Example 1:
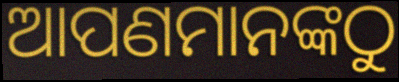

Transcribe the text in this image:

ଆପଣମାନଙ୍କଠୁ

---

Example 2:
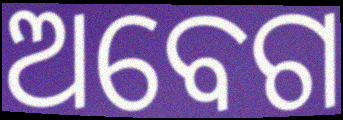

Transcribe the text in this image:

ଅବେଗ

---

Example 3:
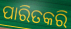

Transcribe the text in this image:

ପାରିତକରି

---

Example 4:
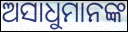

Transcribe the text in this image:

ଅସାଧୁମାନଙ୍କ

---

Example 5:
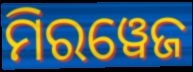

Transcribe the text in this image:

ମିରୱେଜ